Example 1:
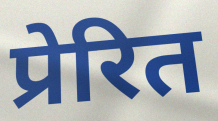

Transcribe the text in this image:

प्रेरित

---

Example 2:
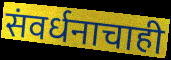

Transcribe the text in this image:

संवर्धनाचाही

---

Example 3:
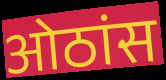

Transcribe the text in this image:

ओठांस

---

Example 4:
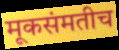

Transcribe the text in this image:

मूकसंमतीच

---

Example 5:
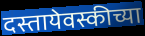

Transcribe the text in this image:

दस्तायेवस्कीच्या